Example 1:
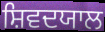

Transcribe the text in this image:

ਸ਼ਿਵਦਯਾਲ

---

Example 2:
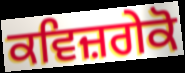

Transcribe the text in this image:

ਕਵਿਜ਼ਗੇਕੋ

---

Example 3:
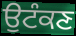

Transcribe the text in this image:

ਉਟੰਕਣ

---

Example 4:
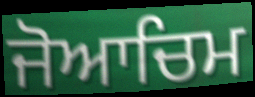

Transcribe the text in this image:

ਜੋਆਚਿਮ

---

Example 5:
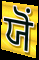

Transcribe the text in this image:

ਯੋਂ